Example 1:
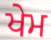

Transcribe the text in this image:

ਖੇਮ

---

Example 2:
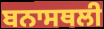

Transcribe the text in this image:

ਬਨਾਸਥਲੀ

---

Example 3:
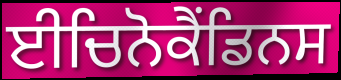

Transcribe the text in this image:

ਈਚਿਨੋਕੈਂਡਿਨਸ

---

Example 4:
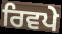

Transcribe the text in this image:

ਰਿਵਪੇ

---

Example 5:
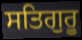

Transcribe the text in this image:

ਸਤਿਗੁਰੂ